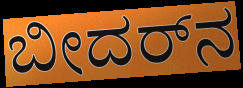
ಬೀದರ್‌ನ